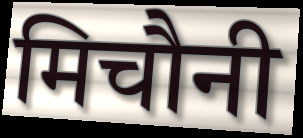
मिचौनी